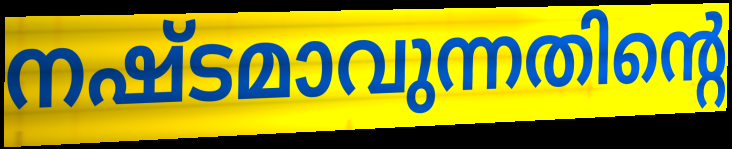
നഷ്ടമാവുന്നതിന്റെ